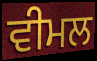
ਵੀਮਲ